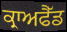
ਕ੍ਰਾਅਫੈੱਡ